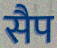
सैप